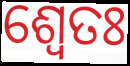
ଶ୍ଵେତଃ